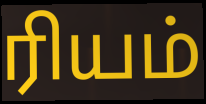
ரியம்